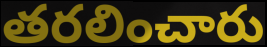
తరలించారు